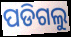
ପଡିଗଲୁ